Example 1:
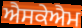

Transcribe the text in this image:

ਐਸਕੇਐਮ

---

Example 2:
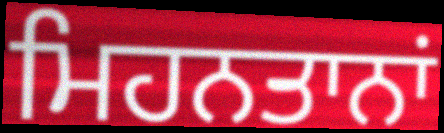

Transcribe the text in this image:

ਮਿਹਨਤਾਨਾਂ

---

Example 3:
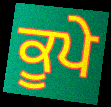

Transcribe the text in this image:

ਕੂਪੇ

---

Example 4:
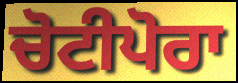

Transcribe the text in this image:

ਚੋਟੀਪੋਰਾ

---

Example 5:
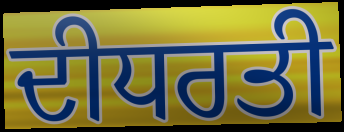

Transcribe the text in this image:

ਦੀਧਰਤੀ